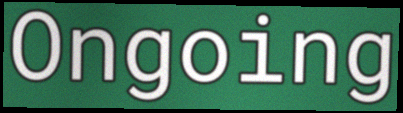
Ongoing